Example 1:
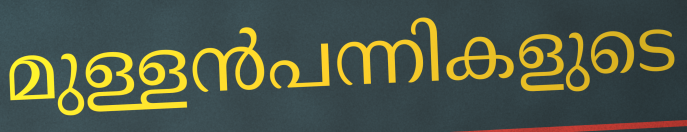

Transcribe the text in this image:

മുള്ളൻപന്നികളുടെ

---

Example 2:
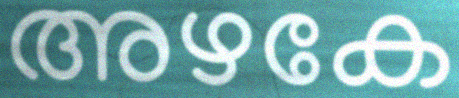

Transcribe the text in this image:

അഴകേ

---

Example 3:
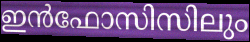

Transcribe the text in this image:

ഇൻഫോസിസിലും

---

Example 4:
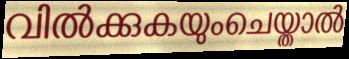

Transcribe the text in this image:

വിൽക്കുകയുംചെയ്താൽ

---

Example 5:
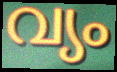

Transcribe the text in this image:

വ്യം